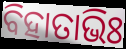
ବିହାତାଭିଃ